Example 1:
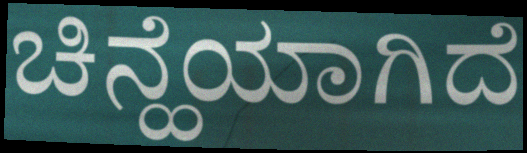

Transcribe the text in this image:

ಚಿನ್ಹೆಯಾಗಿದೆ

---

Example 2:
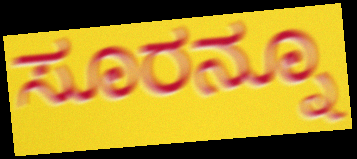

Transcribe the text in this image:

ಸೂರನ್ನೂ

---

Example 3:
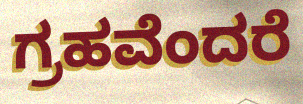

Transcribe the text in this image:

ಗ್ರಹವೆಂದರೆ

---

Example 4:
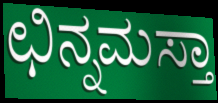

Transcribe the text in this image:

ಛಿನ್ನಮಸ್ತಾ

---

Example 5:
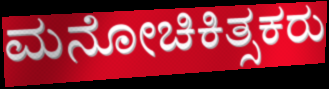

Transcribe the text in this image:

ಮನೋಚಿಕಿತ್ಸಕರು